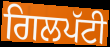
ਗਿਲਪੱਟੀ